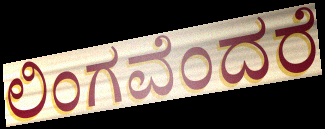
ಲಿಂಗವೆಂದರೆ